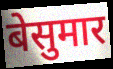
बेसुमार